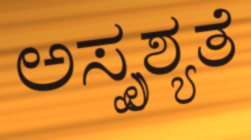
ಅಸ್ಪೃಶ್ಯತೆ